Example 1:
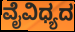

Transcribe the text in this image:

ವೈವಿಧ್ಯದ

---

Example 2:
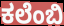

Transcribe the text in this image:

ಕಲೆಂಬಿ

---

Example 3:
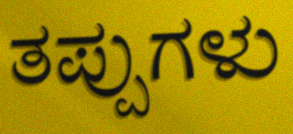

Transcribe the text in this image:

ತಪ್ಪುಗಳು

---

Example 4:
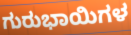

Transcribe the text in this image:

ಗುರುಭಾಯಿಗಳ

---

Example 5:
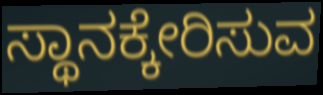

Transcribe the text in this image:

ಸ್ಥಾನಕ್ಕೇರಿಸುವ